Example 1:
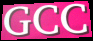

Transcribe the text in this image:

GCC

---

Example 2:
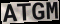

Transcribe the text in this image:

ATGM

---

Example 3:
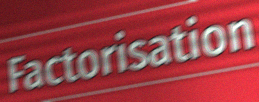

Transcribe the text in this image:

Factorisation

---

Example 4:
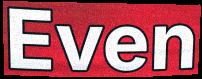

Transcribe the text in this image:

Even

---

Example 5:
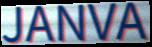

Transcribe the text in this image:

JANVA